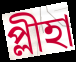
প্লীহা